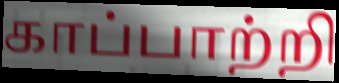
காப்பாற்றி